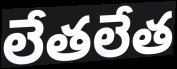
లేతలేత